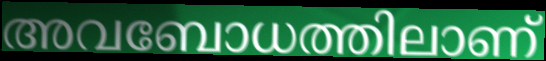
അവബോധത്തിലാണ്